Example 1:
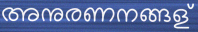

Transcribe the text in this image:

അനുരണനങ്ങള്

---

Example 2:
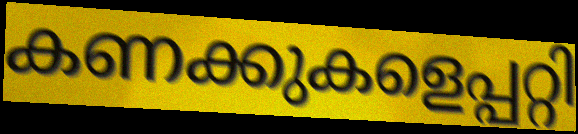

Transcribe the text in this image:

കണക്കുകളെപ്പറ്റി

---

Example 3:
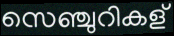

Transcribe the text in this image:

സെഞ്ചുറികള്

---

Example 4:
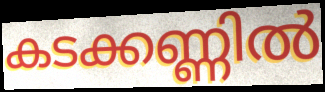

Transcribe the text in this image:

കടക്കണ്ണിൽ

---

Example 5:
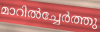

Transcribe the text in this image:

മാറിൽച്ചേർത്തു